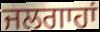
ਜਲਗਾਹਾਂ